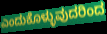
ಎಂದುಕೊಳ್ಳುವುದರಿಂದ